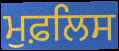
ਮੁਫ਼ਲਿਸ